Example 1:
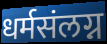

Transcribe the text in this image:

धर्मसंलग्न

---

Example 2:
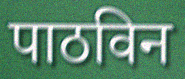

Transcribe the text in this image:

पाठविन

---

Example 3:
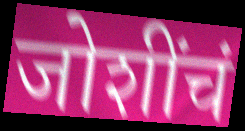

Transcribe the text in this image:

जोशींचं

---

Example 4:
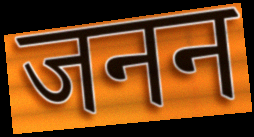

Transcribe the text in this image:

जनन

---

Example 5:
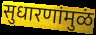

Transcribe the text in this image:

सुधारणांमुळं